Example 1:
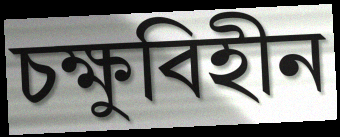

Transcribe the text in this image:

চক্ষুবিহীন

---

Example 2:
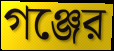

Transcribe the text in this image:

গঞ্জের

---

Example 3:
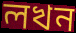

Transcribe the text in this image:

লখন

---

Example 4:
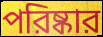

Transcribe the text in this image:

পরিষ্কার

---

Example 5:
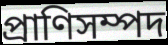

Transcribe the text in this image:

প্রাণিসম্পদ